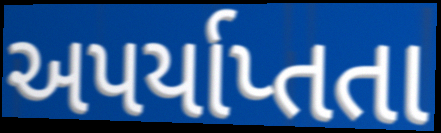
અપર્યાપ્તતા